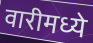
वारीमध्ये